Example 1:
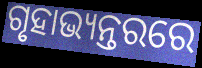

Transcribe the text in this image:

ଗୃହାଭ୍ୟନ୍ତରରେ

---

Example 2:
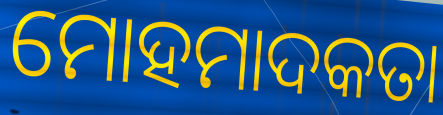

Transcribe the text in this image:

ମୋହମାଦକତା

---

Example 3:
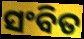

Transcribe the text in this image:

ସଂବିତ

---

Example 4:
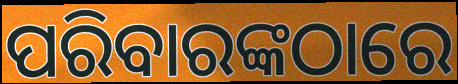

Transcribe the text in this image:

ପରିବାରଙ୍କଠାରେ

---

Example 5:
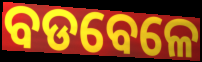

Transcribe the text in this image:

ବଡବେଳେ